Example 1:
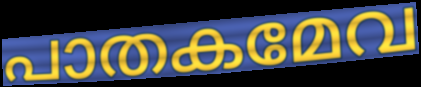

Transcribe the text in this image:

പാതകമേവ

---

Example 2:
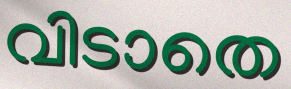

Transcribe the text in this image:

വിടാതെ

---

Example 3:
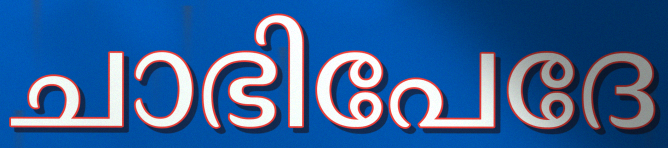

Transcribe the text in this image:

ചാഭിപേദേ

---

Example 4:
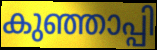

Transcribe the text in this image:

കുഞ്ഞാപ്പി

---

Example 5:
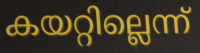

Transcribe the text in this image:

കയറ്റില്ലെന്ന്